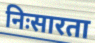
निःसारता